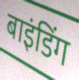
बाइंडिंग